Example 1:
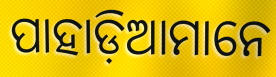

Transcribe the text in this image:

ପାହାଡ଼ିଆମାନେ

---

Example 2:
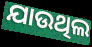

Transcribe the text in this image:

ଯାଉଥିଲ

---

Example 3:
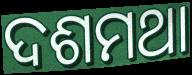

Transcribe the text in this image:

ଦଶମଥା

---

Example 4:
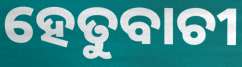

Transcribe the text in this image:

ହେତୁବାଚୀ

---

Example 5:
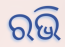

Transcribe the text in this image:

ରଭି